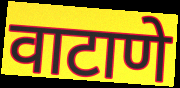
वाटाणे